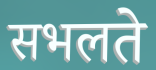
सभलते